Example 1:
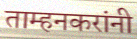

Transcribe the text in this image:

ताम्हनकरांनी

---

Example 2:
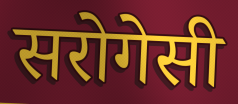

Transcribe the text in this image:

सरोगेसी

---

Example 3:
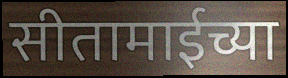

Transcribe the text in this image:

सीतामाईच्या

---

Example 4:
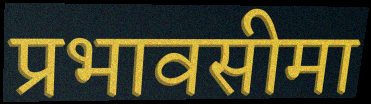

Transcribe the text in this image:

प्रभावसीमा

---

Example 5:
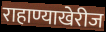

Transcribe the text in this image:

राहाण्याखेरीज